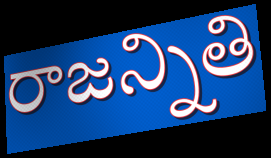
రాజన్నితి